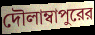
দৌলাম্বাপুরের